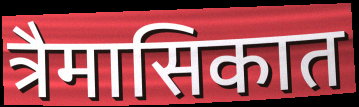
त्रैमासिकात